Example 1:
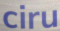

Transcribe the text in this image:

ciru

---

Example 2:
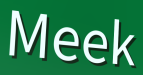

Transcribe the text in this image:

Meek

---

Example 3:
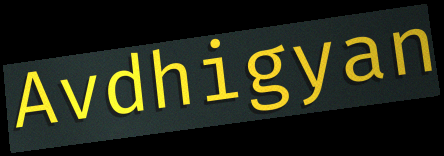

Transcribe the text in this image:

Avdhigyan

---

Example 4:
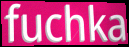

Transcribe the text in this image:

fuchka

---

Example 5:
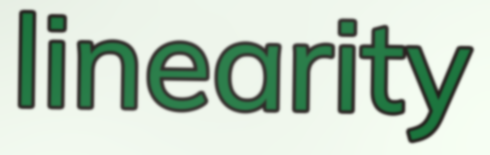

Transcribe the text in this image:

linearity